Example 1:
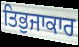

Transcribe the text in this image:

ਤਿਭੁਜਾਕਾਰ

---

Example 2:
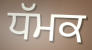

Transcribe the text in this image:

ਧੱਮਕ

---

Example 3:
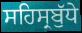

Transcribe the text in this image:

ਸਹਿਸ੍ਰਬੁੱਧੇ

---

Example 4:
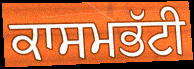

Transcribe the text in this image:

ਕਾਸਮਭੱਟੀ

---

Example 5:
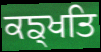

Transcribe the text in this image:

ਕਙ੍ਖਤਿ